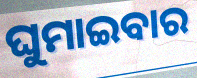
ଘୁମାଇବାର